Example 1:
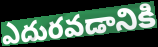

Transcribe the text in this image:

ఎదురవడానికి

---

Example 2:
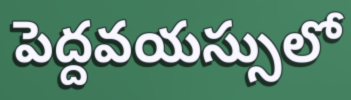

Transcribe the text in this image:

పెద్దవయస్సులో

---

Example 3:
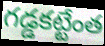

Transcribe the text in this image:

గడ్డకట్టేంత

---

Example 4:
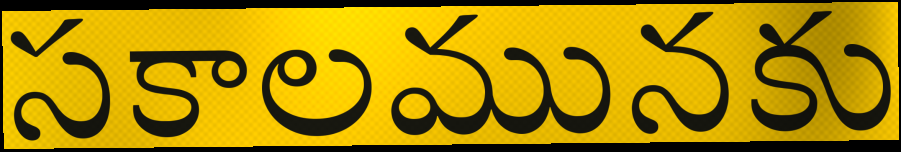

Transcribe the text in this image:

సకాలమునకు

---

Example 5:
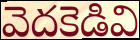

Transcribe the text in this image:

వెదకెడివి